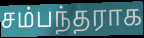
சம்பந்தராக